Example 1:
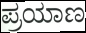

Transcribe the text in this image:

ಪ್ರಯಾಣ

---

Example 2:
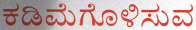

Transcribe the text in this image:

ಕಡಿಮೆಗೊಳಿಸುವ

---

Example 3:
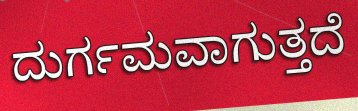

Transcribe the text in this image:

ದುರ್ಗಮವಾಗುತ್ತದೆ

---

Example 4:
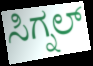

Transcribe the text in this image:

ಸಿಗ್ನಲ್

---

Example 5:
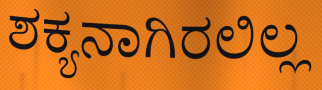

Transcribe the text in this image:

ಶಕ್ಯನಾಗಿರಲಿಲ್ಲ